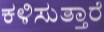
ಕಳಿಸುತ್ತಾರೆ